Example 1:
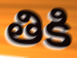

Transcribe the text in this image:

తికి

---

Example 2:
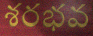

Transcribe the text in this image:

శరభవ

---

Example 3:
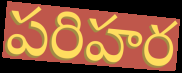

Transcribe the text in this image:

పరిహర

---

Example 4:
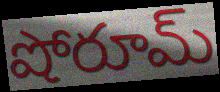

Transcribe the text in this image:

షోరూమ్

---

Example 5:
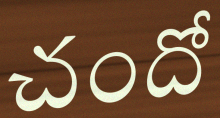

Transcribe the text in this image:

చందో